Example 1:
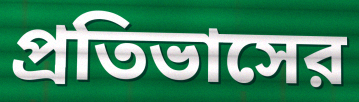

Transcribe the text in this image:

প্রতিভাসের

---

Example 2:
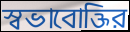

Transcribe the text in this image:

স্বভাবোক্তির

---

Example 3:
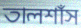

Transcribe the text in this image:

তালশাঁস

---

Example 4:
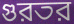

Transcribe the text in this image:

গুরতর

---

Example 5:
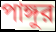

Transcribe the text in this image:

পাঙ্গুর